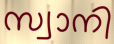
സ്വാനി